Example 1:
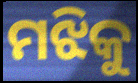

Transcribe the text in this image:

ମଝିକୁ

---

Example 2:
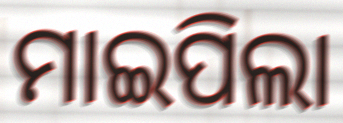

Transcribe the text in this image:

ମାଇପିଲା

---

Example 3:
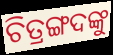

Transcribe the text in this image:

ଚିତ୍ରଙ୍ଗଦଙ୍କୁ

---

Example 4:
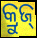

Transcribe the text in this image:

କ୍ରୁଜ୍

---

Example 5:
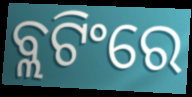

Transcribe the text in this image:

ବ୍ଲଟିଂରେ